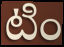
టిం